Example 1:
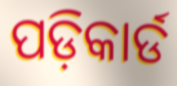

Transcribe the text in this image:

ପଡ଼ିକାର୍ଡ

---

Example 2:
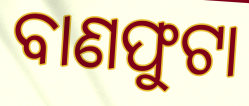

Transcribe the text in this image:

ବାଣଫୁଟା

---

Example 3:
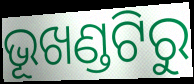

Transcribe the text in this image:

ଭୂଖଣ୍ଡଟିରୁ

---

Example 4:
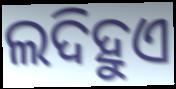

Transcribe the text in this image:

ଲଦିହୁଏ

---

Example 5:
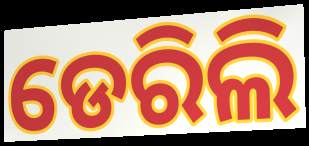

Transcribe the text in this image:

ଡେରିଲି